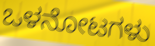
ಒಳನೋಟಗಳು